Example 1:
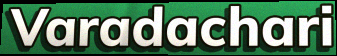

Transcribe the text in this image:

Varadachari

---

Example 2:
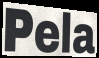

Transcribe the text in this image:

Pela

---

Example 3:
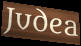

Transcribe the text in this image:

Judea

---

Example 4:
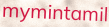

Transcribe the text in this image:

mymintamil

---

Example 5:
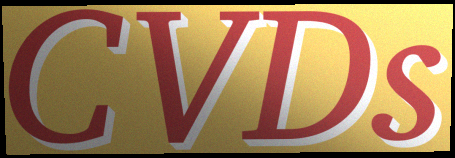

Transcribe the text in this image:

CVDs